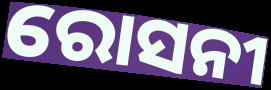
ରୋସନୀ